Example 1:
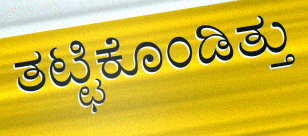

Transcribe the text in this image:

ತಟ್ಟಿಕೊಂಡಿತ್ತು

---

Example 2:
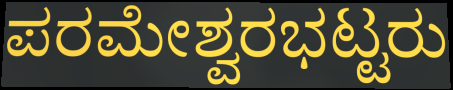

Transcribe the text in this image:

ಪರಮೇಶ್ವರಭಟ್ಟರು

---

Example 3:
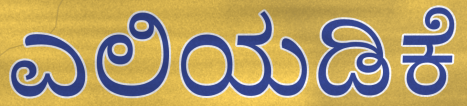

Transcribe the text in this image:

ಎಲಿಯಡಿಕೆ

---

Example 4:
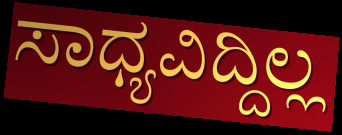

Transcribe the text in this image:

ಸಾಧ್ಯವಿದ್ದಿಲ್ಲ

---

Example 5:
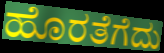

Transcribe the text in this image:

ಹೊರತೆಗೆದು